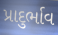
પ્રાદુર્ભાવ